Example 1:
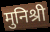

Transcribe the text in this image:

मुनिश्री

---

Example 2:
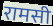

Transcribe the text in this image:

रामसी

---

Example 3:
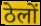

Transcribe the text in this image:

ठेलों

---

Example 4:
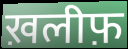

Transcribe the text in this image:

ख़लीफ़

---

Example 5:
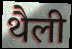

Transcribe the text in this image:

थैली